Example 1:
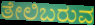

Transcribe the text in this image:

ತೇಲಿಬರುವ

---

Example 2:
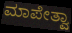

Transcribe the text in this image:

ಮಾಪೇತ್ವಾ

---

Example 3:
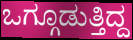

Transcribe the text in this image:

ಒಗ್ಗೂಡುತ್ತಿದ್ದ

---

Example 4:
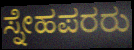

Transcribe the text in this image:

ಸ್ನೇಹಪರರು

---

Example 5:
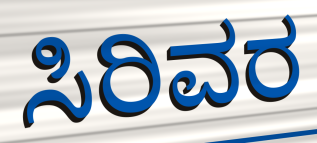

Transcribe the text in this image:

ಸಿರಿವರ